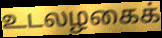
உடலழகைக்